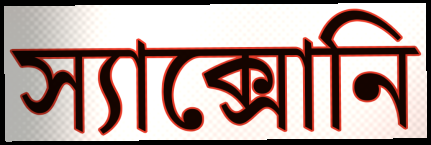
স্যাক্সোনি